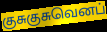
குசுகுசுவெனப்